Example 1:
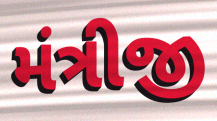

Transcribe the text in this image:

મંત્રીજી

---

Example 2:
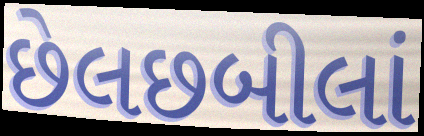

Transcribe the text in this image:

છેલછબીલાં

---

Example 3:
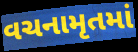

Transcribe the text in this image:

વચનામૃતમાં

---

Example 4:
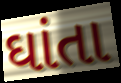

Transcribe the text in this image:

ઘાંતા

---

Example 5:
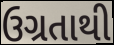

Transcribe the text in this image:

ઉગ્રતાથી